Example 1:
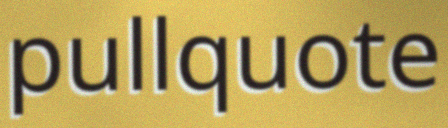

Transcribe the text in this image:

pullquote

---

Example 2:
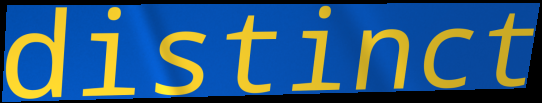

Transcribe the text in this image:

distinct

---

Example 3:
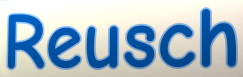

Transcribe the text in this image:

Reusch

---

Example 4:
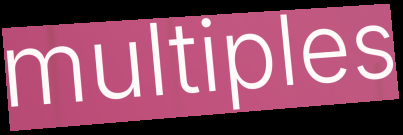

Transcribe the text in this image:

multiples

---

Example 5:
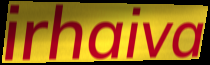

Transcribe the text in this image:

irhaiva